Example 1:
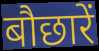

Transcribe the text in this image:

बौछारें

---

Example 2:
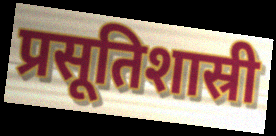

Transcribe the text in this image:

प्रसूतिशास्री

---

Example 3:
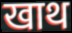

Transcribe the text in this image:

खाथ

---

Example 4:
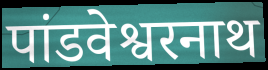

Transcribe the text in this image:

पांडवेश्वरनाथ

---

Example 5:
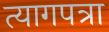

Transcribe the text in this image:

त्यागपत्रा